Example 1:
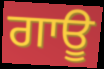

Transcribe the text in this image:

ਗਾਊ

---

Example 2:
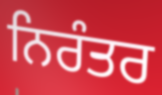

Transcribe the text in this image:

ਨਿਰੰਤਰ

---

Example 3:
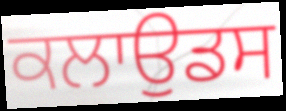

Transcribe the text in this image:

ਕਲਾਉਡਸ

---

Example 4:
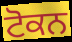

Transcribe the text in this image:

ਟੋਕਨ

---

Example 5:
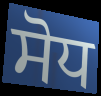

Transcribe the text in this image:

ਸੋਧ